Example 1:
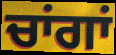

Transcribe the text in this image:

ਚਾਂਗਾਂ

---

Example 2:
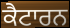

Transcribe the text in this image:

ਕੈਟਾਰਨ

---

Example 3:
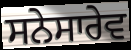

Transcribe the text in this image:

ਸਨੇਸਾਰੇਵ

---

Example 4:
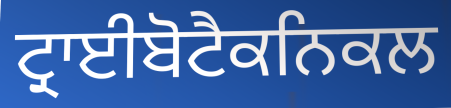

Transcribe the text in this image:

ਟ੍ਰਾਈਬੋਟੈਕਨਿਕਲ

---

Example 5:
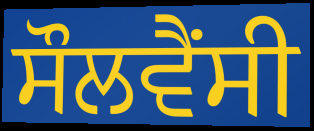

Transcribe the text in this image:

ਸੌਲਵੈਂਸੀ